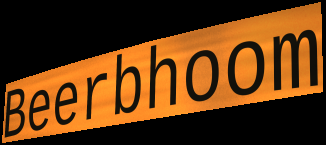
Beerbhoom